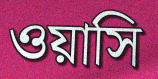
ওয়াসি